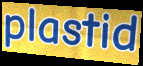
plastid